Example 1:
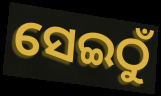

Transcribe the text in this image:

ସେଇଠୁଁ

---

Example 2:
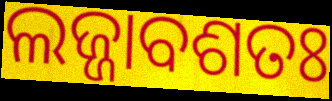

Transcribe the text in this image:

ଲଜ୍ଜାବଶତଃ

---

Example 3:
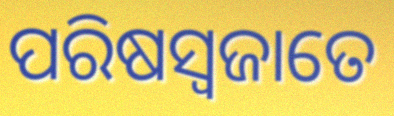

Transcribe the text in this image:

ପରିଷସ୍ଵଜାତେ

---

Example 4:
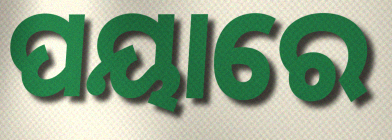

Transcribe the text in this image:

ପୟାରେ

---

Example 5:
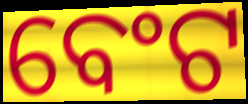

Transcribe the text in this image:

ବେଂଟ